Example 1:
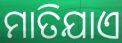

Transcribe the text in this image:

ମାତିଯାଏ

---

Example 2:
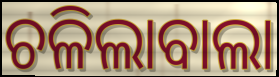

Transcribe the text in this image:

ଚଳିଲାବାଲା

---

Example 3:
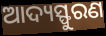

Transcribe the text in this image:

ଆଦ୍ୟସ୍ଫୁରଣ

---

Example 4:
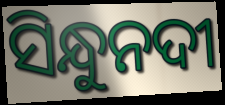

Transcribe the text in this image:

ସିନ୍ଧୁନଦୀ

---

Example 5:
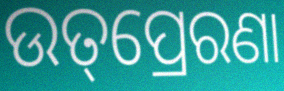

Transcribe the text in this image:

ଉତ୍‌ପ୍ରେରଣା